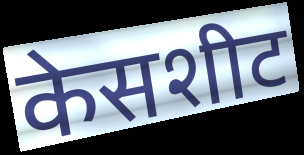
केसशीट